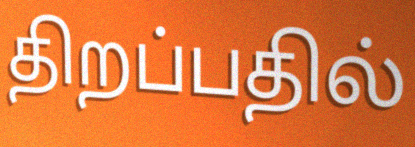
திறப்பதில்